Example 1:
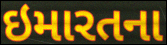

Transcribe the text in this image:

ઇમારતના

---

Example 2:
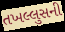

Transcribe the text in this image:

તખલ્લુસની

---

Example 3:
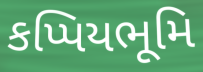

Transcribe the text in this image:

કપ્પિયભૂમિ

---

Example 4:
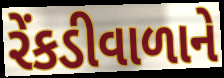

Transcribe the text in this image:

રેંકડીવાળાને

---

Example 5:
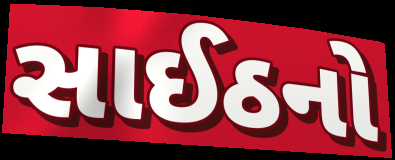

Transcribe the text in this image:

સાઈઠનો